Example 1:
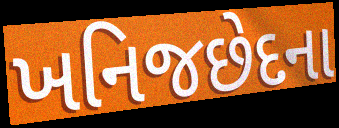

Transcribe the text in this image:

ખનિજછેદના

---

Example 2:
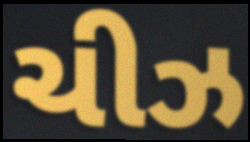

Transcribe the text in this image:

ચીઝ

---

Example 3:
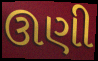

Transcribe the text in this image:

ઊણી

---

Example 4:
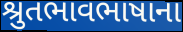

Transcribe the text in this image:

શ્રુતભાવભાષાના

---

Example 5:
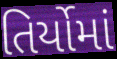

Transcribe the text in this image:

તિર્યોમાં